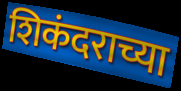
शिकंदराच्या